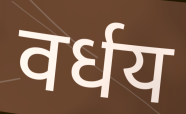
वर्धय